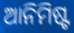
ଆନିମିଷ୍ଟ